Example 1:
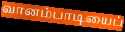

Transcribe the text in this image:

வானம்பாடியைப்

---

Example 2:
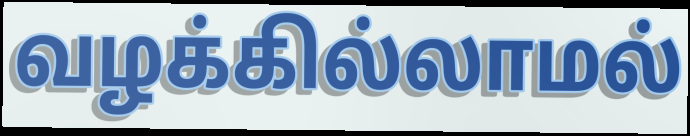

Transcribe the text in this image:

வழக்கில்லாமல்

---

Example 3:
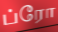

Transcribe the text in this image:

ப்ரோ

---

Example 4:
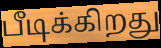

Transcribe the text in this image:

பீடிக்கிறது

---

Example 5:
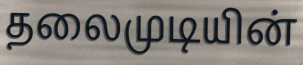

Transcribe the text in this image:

தலைமுடியின்